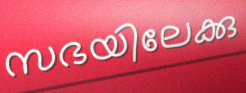
സഭയിലേക്കു